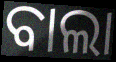
ବାଲା